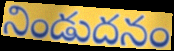
నిండుదనం